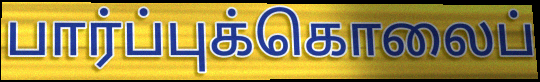
பார்ப்புக்கொலைப்